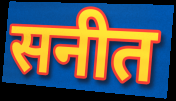
सनीत